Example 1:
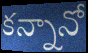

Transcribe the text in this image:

కన్నానో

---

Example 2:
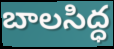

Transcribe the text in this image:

బాలసిద్ధ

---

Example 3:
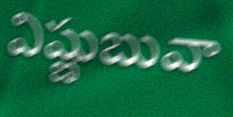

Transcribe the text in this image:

విష్ణుబువా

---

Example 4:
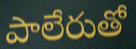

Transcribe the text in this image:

పాలేరుతో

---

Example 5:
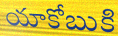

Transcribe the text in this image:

యాకోబుకి